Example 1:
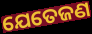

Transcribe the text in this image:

ଯେତେଜଣ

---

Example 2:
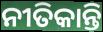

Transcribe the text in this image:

ନୀତିକାନ୍ତି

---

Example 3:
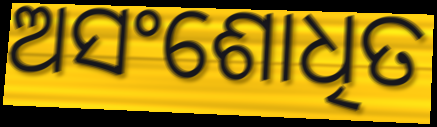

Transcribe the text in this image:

ଅସଂଶୋଧିତ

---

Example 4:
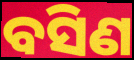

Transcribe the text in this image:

ବସିଣ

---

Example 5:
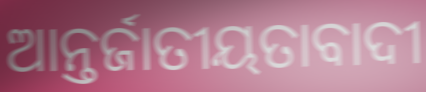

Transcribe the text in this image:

ଆନ୍ତର୍ଜାତୀୟତାବାଦୀ